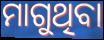
ମାଗୁଥିବା